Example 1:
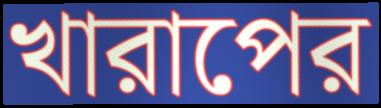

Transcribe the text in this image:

খারাপের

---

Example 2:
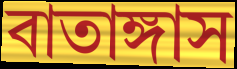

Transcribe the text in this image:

বাতাঙ্গাস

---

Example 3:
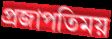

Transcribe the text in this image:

প্রজাপতিময়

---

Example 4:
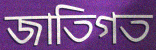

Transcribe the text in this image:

জাতিগত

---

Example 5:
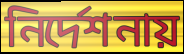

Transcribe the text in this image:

নির্দেশনায়